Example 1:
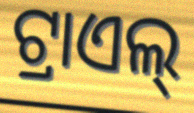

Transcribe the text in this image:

ଟ୍ରାଏଲ୍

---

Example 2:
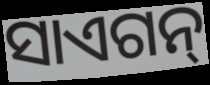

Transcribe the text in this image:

ସାଏଗନ୍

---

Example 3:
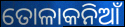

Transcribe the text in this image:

ତୋଳାକନିଆଁ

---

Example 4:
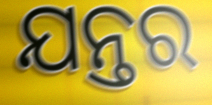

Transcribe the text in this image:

ଯନ୍ତର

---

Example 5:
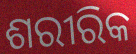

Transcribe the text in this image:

ଶରୀରିକ